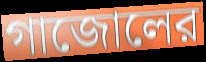
গাজোলের